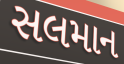
સલમાન